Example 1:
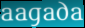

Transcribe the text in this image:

aagada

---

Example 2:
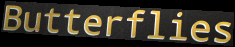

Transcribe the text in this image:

Butterflies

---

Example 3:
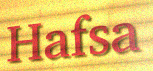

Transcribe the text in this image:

Hafsa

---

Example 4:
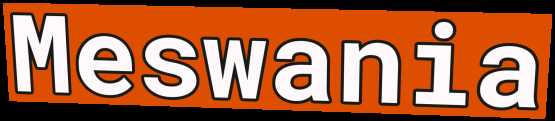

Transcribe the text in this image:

Meswania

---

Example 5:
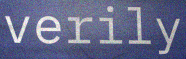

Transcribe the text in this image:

verily